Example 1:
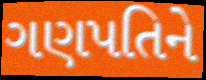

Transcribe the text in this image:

ગણપતિને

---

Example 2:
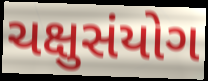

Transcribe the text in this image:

ચક્ષુસંયોગ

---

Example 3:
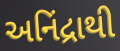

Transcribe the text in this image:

અનિંદ્રાથી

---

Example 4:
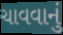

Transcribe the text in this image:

ચાવવાનું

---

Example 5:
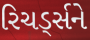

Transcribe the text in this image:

રિચર્ડ્સને